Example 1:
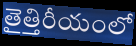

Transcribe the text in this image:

తైత్తిరీయంలో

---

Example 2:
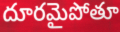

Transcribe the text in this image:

దూరమైపోతూ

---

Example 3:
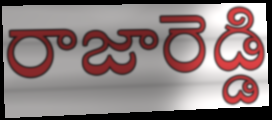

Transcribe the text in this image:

రాజారెడ్డి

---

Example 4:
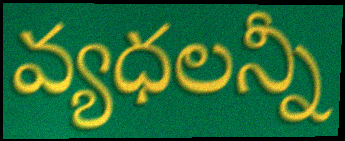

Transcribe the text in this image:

వ్యధలన్నీ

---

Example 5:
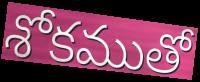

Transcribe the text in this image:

శోకముతో